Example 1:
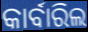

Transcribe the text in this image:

କାର୍ବାରିଲ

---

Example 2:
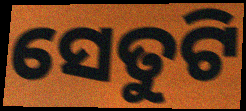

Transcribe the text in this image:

ସେତୁଟି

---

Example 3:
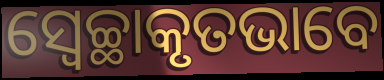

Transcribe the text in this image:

ସ୍ୱେଚ୍ଛାକୃତଭାବେ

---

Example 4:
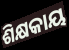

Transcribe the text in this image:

ଶିକ୍ଷକାୟ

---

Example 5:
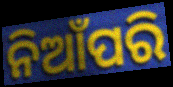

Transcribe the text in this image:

ନିଆଁପରି